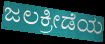
ಜಲಕ್ರೀಡೆಯ